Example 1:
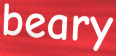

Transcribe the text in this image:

beary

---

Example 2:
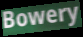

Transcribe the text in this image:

Bowery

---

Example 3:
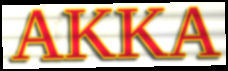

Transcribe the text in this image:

AKKA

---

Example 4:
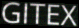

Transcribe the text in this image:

GITEX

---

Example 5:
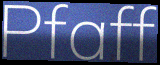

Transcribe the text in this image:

Pfaff